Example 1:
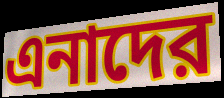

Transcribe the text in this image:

এনাদের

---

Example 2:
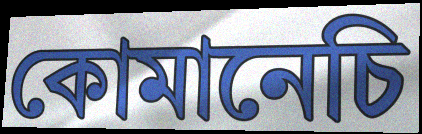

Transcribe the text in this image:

কোমানেচি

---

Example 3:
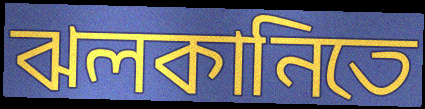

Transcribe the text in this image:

ঝলকানিতে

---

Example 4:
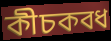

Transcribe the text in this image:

কীচকবধ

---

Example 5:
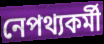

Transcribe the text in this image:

নেপথ্যকর্মী